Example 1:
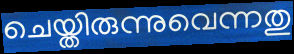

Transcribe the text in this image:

ചെയ്തിരുന്നുവെന്നതു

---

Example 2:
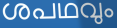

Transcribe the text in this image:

ശപഥവും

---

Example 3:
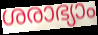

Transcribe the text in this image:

ശരാഭ്യാം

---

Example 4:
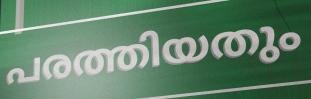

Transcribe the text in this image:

പരത്തിയതും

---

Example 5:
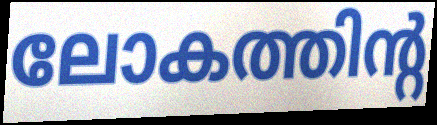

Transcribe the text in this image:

ലോകത്തിന്റ